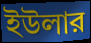
ইউলার